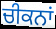
ਚੀਕਨਾਂ